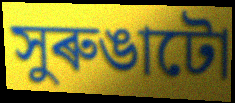
সুৰুঙাটো